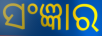
ସଂଜ୍ଞାର